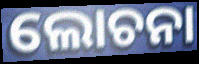
ଲୋଚନା